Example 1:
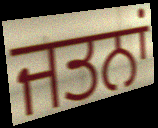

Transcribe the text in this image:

ਜਤਨਾਂ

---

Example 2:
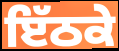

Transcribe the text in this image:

ਇੱਠਕੇ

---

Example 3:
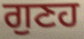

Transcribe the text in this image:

ਗੁਣਹ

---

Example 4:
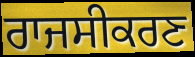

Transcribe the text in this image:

ਰਾਜਸੀਕਰਣ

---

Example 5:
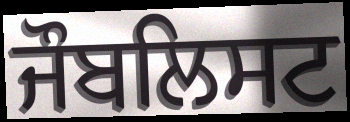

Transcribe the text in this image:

ਜੌਬਲਿਸਟ